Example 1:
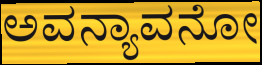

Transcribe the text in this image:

ಅವನ್ಯಾವನೋ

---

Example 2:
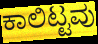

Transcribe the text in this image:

ಕಾಲಿಟ್ಟವು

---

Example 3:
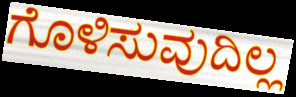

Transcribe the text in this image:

ಗೊಳಿಸುವುದಿಲ್ಲ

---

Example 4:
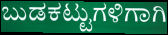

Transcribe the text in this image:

ಬುಡಕಟ್ಟುಗಳಿಗಾಗಿ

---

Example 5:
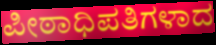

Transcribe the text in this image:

ಪೀಠಾಧಿಪತಿಗಳಾದ